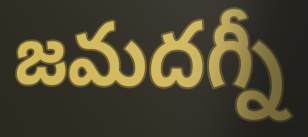
జమదగ్నీ